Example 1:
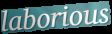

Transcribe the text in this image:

laborious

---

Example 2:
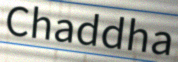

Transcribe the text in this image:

Chaddha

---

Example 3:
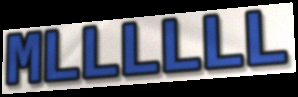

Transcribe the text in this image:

MLLLLLL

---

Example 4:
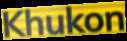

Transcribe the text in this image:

Khukon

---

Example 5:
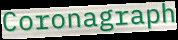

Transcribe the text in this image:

Coronagraph